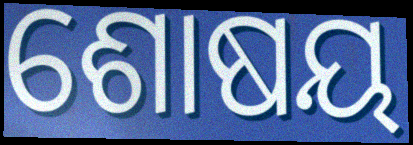
ଶୋଷୟ